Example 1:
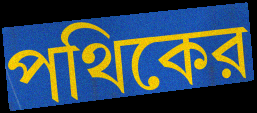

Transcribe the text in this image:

পথিকের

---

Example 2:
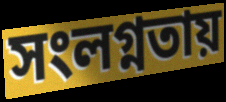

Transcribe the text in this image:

সংলগ্নতায়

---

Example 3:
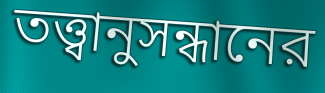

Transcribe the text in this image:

তত্ত্বানুসন্ধানের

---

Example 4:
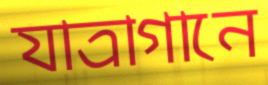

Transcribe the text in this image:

যাত্রাগানে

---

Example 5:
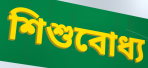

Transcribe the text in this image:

শিশুবোধ্য